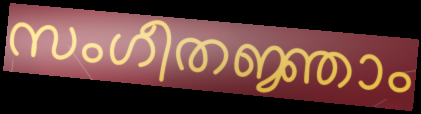
സംഗീതജ്ഞാം